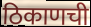
ठिकाणची